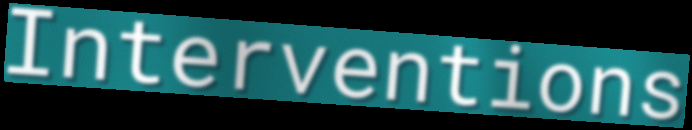
Interventions